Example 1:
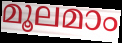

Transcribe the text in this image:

മൂലമാം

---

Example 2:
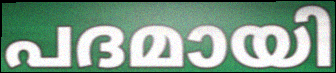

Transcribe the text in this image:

പദമായി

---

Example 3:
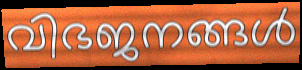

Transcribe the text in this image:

വിഭജനങ്ങൾ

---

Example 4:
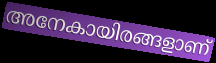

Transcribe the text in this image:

അനേകായിരങ്ങളാണ്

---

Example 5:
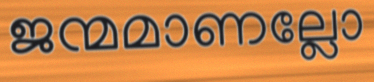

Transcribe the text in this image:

ജന്മമാണല്ലോ